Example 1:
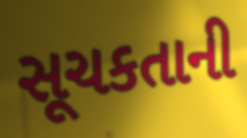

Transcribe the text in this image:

સૂચકતાની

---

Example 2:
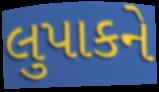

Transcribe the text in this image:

લુપાકને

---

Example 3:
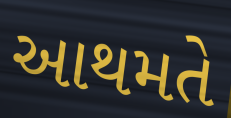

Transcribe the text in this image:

આથમતે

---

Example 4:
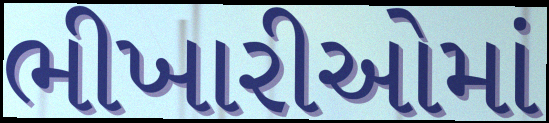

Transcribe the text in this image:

ભીખારીઓમાં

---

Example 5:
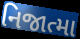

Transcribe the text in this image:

નિજાત્મા